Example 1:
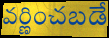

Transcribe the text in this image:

వర్ణించబడే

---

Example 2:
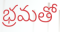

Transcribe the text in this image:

భ్రమతో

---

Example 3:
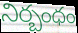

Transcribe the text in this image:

నిర్బంధం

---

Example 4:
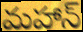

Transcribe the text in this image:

మహాన్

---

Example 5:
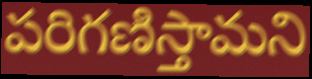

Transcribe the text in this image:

పరిగణిస్తామని